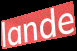
lande